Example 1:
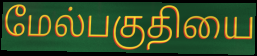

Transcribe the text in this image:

மேல்பகுதியை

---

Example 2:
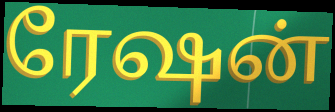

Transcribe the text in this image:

ரேஷன்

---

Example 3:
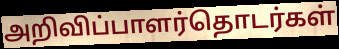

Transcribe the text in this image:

அறிவிப்பாளர்தொடர்கள்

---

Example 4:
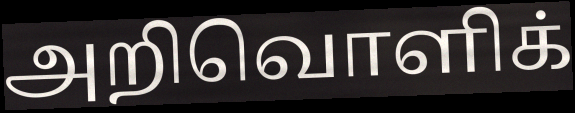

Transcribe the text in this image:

அறிவொளிக்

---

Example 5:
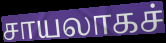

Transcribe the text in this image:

சாயலாகச்